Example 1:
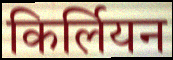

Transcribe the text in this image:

किर्लियन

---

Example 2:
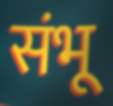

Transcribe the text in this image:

संभू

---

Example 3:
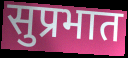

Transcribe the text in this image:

सुप्रभात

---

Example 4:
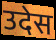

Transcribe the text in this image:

उदेस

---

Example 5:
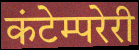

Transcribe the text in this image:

कंटेम्परेरी